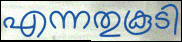
എന്നതുകൂടി